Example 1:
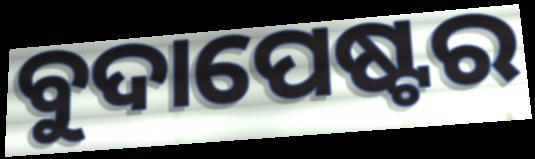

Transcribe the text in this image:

ବୁଦାପେଷ୍ଟର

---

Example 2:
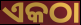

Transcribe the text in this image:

ଏକଠା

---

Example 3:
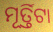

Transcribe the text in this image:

ମୂର୍ତ୍ତିଟା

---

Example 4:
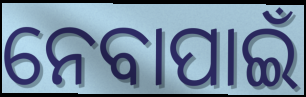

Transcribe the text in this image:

ନେବାପାଇଁ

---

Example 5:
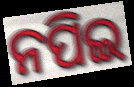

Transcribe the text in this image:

ନପିଇ